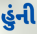
હુંની